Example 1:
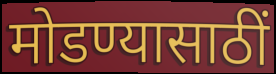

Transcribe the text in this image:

मोडण्यासाठीं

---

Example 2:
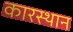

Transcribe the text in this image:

कारस्थान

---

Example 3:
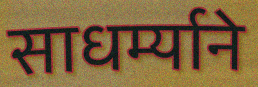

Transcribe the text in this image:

साधर्म्याने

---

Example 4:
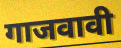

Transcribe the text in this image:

गाजवावी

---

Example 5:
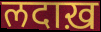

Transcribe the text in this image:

लदाख़